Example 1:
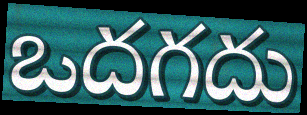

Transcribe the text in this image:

ఒదగదు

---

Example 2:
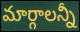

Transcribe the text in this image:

మార్గాలన్నీ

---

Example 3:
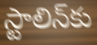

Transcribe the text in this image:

స్టాలిన్‌కు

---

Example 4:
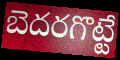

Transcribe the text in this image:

బెదరగొట్టే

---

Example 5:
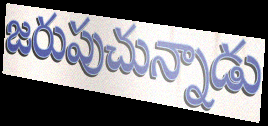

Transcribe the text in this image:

జరుపుచున్నాడు